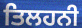
ਤਿਲਹਨੀ